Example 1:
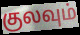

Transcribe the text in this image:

குலவும்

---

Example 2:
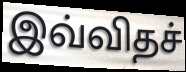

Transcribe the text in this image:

இவ்விதச்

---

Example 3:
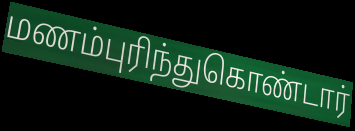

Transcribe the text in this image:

மணம்புரிந்துகொண்டார்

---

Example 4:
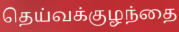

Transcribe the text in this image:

தெய்வக்குழந்தை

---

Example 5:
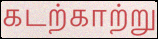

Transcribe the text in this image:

கடற்காற்று